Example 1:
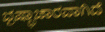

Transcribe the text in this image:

ಭ್ರಷ್ಟಾಚಾರವಾಗಿದೆ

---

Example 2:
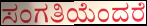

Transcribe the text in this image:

ಸಂಗತಿಯೆಂದರೆ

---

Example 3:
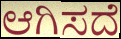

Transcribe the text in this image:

ಆಗಿಸದೆ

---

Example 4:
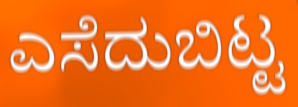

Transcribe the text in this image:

ಎಸೆದುಬಿಟ್ಟ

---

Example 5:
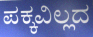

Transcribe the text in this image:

ಪಕ್ಕವಿಲ್ಲದ